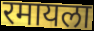
रमायला